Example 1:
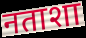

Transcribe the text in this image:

नताशा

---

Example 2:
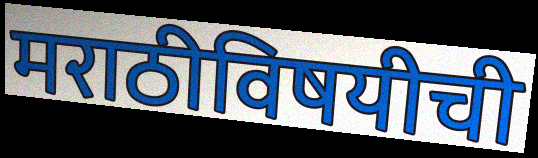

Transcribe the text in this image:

मराठीविषयीची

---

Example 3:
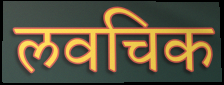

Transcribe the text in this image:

लवचिक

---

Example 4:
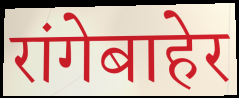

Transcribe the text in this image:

रांगेबाहेर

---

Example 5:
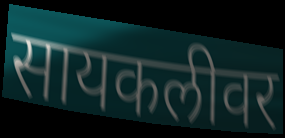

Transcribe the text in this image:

सायकलीवर